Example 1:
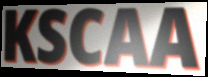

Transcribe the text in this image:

KSCAA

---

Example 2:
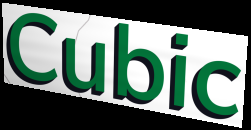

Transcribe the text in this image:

Cubic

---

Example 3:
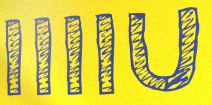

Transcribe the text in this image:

IIIIU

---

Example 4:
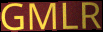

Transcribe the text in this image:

GMLR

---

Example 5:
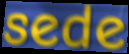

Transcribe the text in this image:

sede